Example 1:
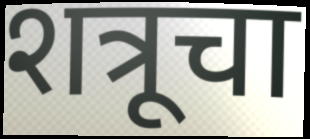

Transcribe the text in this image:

शत्रूचा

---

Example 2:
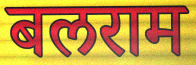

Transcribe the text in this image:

बलराम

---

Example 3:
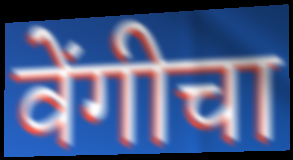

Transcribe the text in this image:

वेंगीचा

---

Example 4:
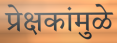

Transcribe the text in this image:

प्रेक्षकांमुळे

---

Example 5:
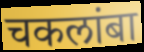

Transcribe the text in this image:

चकलांबा